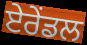
ਏਰੇਂਡਲ